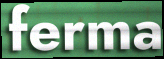
ferma